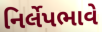
નિર્લેપભાવે